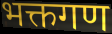
भक्तगण